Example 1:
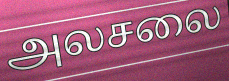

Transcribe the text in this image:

அலசலை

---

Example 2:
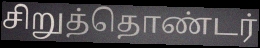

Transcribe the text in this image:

சிறுத்தொண்டர்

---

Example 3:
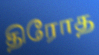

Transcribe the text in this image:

திரோத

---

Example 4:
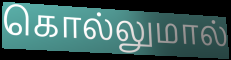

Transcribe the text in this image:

கொல்லுமால்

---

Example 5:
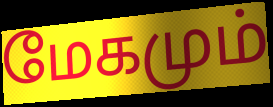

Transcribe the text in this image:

மேகமும்